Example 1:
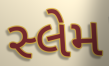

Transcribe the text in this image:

સ્લેમ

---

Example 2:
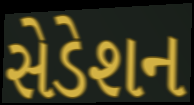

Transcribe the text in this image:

સેડેશન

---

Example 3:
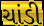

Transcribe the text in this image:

ચાંડી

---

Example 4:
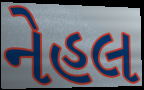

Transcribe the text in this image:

નેહલ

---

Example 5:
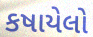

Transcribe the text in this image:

કષાયેલો